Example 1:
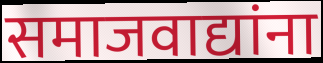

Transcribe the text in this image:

समाजवाद्यांना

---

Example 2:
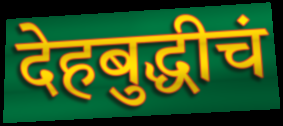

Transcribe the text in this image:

देहबुद्धीचं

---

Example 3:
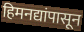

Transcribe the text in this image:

हिमनद्यांपासून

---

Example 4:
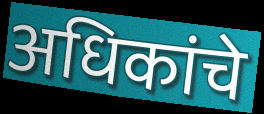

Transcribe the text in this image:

अधिकांचे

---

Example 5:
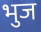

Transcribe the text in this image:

भुज